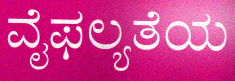
ವೈಫಲ್ಯತೆಯ